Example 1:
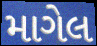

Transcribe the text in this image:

માગેલ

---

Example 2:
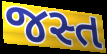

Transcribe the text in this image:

જસ્ત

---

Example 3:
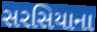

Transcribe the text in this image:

સરસિયાના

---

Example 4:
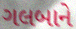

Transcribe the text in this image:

ગલબાને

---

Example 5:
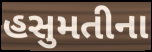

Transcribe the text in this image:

હસુમતીના